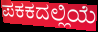
ಪಕಕದಲ್ಲಿಯೆ